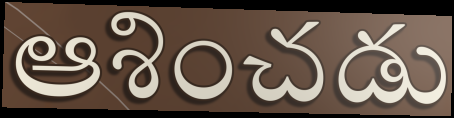
ఆశించడు